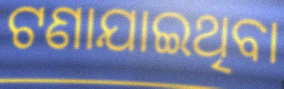
ଟଣାଯାଇଥିବା